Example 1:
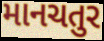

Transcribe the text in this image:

માનચતુર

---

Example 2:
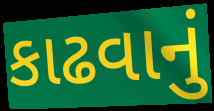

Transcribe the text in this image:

કાઢવાનું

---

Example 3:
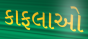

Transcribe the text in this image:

કાફલાઓ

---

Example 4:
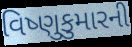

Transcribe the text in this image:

વિષ્ણુકુમારની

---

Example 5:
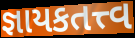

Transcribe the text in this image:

જ્ઞાયકતત્ત્વ